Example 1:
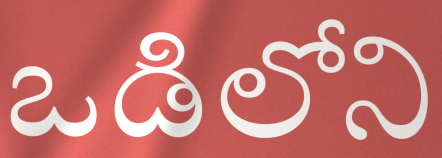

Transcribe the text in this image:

ఒడిలోని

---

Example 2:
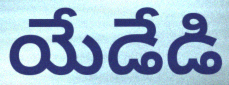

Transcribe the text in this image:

యేడేడి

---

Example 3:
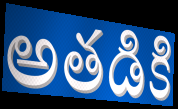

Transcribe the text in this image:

అతడికి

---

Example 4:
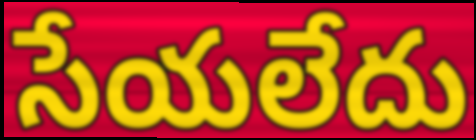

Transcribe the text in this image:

సేయలేదు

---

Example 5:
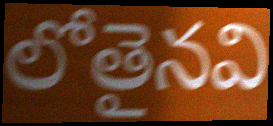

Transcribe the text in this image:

లోతైనవి